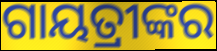
ଗାୟତ୍ରୀଙ୍କର